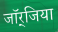
जॉर्जिया